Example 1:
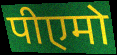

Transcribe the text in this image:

पीएमो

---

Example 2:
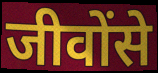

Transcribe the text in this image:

जीवोंसे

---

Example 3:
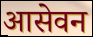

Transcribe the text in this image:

आसेवन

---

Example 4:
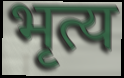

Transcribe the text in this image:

भृत्य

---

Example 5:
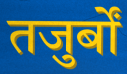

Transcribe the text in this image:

तजुर्बों